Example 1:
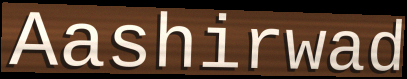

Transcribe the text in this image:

Aashirwad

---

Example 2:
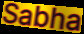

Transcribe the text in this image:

Sabha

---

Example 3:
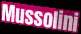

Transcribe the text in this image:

Mussolini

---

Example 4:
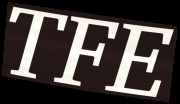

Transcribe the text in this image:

TFE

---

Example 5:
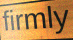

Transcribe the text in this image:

firmly